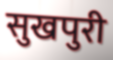
सुखपुरी